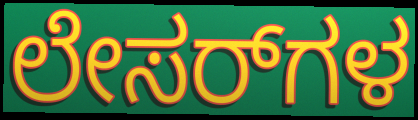
ಲೇಸರ್‌ಗಳ